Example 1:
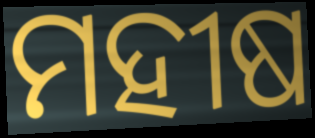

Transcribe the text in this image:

ମହୀଷ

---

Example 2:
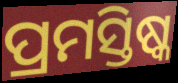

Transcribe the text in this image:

ପ୍ରମସ୍ତିଷ୍କ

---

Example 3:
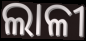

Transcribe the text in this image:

ଲାଳୀ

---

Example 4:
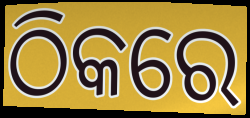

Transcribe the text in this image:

ଠିକରେ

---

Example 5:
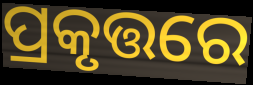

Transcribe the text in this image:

ପ୍ରକୃତ୍ତରେ